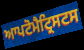
ਆਪਟੋਮੈਟ੍ਰਿਸਟਸ